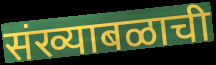
संख्याबळाची